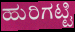
ಹುರಿಗಟ್ಟಿ